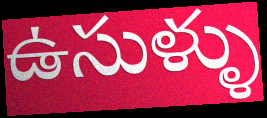
ఉసుళ్ళు